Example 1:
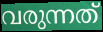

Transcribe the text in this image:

വരുന്നത്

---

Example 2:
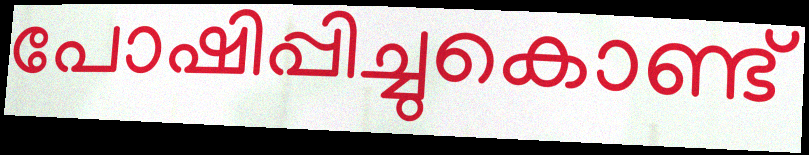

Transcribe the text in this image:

പോഷിപ്പിച്ചുകൊണ്ട്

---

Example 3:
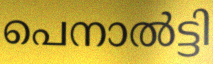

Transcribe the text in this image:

പെനാൽട്ടി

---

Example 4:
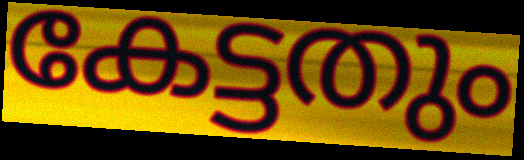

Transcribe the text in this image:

കേട്ടതും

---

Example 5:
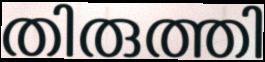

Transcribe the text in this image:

തിരുത്തി